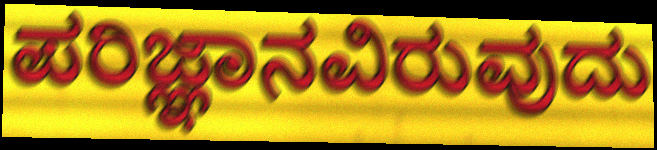
ಪರಿಜ್ಞಾನವಿರುವುದು